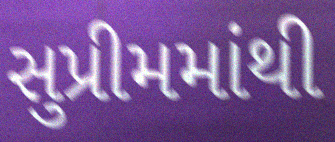
સુપ્રીમમાંથી